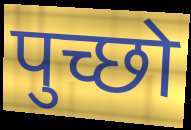
पुच्छो